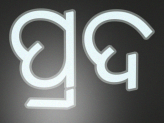
ପ୍ରଦ